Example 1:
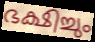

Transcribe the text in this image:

ഭക്ഷിച്ചും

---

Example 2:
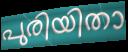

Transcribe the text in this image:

പുരിയിതാ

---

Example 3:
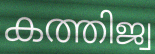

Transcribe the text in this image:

കത്തിജ്വ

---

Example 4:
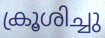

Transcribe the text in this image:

ക്രൂശിച്ചു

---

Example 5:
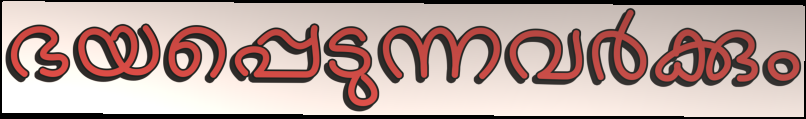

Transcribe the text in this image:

ഭയപ്പെടുന്നവർക്കും